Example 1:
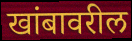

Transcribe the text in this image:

खांबावरील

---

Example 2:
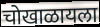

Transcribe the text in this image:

चोखाळायला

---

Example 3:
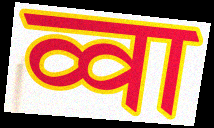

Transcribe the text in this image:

व्वा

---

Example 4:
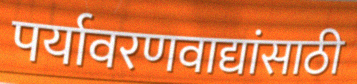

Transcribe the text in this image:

पर्यावरणवाद्यांसाठी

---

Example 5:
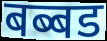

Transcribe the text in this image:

बब्बड